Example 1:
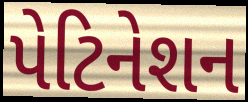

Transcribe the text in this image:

પેટિનેશન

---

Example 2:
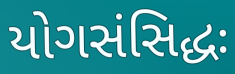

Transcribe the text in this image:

યોગસંસિદ્ધઃ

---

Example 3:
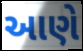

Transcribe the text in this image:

આણે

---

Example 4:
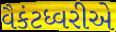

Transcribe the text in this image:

વૈકંટધ્વરીએ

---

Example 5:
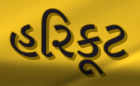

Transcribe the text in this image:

હરિકૂટ